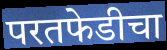
परतफेडीचा